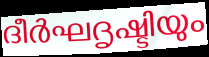
ദീർഘദൃഷ്ടിയും